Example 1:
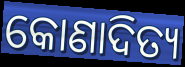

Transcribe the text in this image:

କୋଣାଦିତ୍ୟ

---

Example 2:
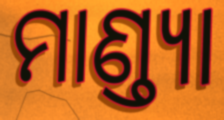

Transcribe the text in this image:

ମାଣ୍ଡ୍ୟା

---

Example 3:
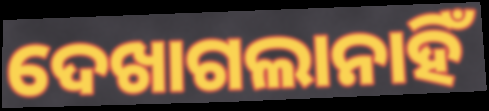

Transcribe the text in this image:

ଦେଖାଗଲାନାହିଁ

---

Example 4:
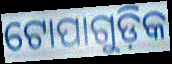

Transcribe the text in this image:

ଟୋପାଗୁଡ଼ିକ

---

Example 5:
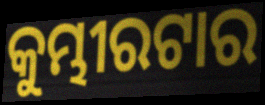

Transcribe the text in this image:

କୁମ୍ଭୀରଟାର